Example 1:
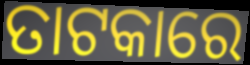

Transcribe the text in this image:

ତାଟକାରେ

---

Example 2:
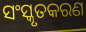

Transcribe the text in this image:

ସଂସ୍କୃତକରଣ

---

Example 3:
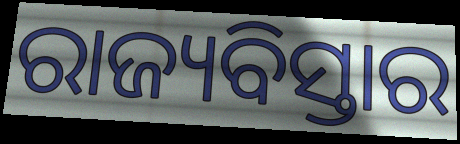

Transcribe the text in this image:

ରାଜ୍ୟବିସ୍ତାର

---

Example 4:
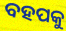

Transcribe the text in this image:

ବହପକୁ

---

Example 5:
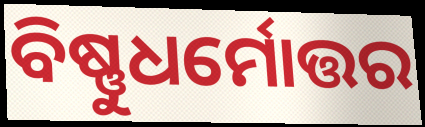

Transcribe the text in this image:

ବିଷ୍ଣୁଧର୍ମୋତ୍ତର